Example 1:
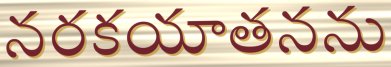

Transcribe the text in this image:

నరకయాతనను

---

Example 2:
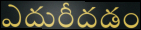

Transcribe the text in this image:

ఎదురీదడం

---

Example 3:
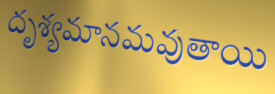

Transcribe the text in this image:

దృశ్యమానమవుతాయి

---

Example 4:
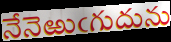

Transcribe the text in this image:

నేనెఱుఁగుదును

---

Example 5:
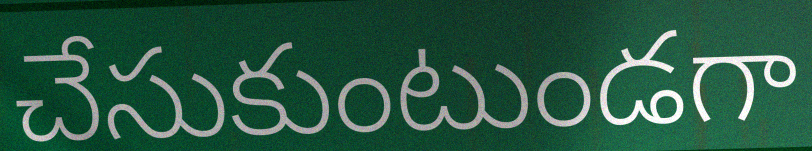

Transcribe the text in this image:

చేసుకుంటుండగా